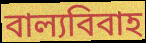
বাল্যবিবাহ